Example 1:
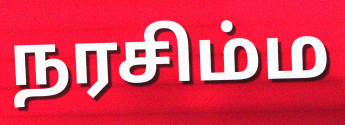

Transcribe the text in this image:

நரசிம்ம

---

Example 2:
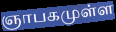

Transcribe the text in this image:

ஞாபகமுள்ள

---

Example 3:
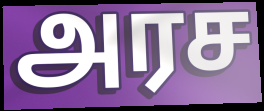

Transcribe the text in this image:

அரச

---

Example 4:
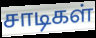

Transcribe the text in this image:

சாடிகள்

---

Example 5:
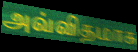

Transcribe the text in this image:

அவ்விதமாக